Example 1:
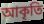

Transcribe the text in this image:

আকৃতি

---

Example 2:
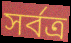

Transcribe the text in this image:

সর্বত্র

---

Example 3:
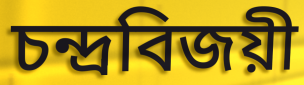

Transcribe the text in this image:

চন্দ্রবিজয়ী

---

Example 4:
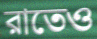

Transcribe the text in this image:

রাতেও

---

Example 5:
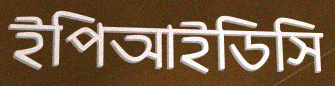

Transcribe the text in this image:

ইপিআইডিসি